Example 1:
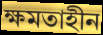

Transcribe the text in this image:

ক্ষমতাহীন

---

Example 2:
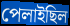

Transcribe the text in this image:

পেলাইছিল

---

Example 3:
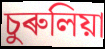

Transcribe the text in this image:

চুৰুলিয়া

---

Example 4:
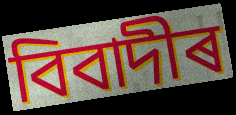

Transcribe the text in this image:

বিবাদীৰ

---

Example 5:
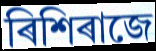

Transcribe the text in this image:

ৰিশিৰাজে